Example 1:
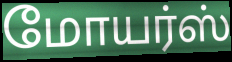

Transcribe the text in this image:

மோயர்ஸ்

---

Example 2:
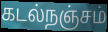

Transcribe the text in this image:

கடல்நஞ்சம்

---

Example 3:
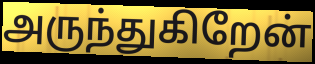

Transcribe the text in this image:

அருந்துகிறேன்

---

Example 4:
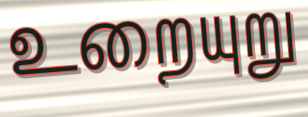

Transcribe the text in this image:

உறையுறு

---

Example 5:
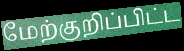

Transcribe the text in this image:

மேற்குறிப்பிட்ட